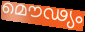
മൌഢ്യം